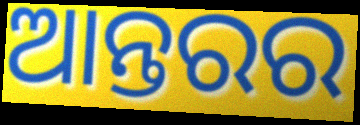
ଆନ୍ତରର